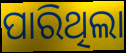
ପାରିଥିଲା